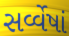
સર્વ્વેષાં